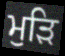
ਮੁੜਿ